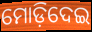
ମୋଡ଼ିଦେଇ